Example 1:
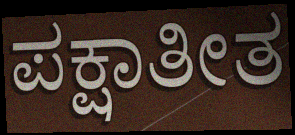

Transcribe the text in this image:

ಪಕ್ಷಾತೀತ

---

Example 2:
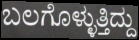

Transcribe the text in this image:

ಬಲಗೊಳ್ಳುತ್ತಿದ್ದು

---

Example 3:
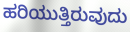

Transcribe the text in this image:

ಹರಿಯುತ್ತಿರುವುದು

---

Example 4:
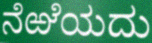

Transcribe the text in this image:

ನೆಱೆಯದು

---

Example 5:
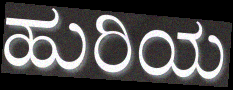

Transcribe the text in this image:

ಹುರಿಯ